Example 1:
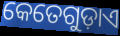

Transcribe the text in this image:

କେତେଗୁଡ଼ାଏ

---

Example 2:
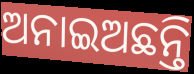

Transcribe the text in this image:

ଅନାଇଅଛନ୍ତି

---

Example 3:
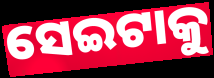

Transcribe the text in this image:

ସେଇଟାକୁ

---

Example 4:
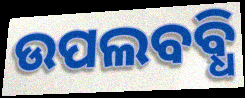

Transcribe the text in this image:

ଉପଲବବ୍ଧି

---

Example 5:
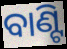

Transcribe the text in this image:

ବାଣ୍ଟି